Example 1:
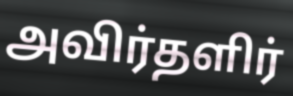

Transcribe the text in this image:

அவிர்தளிர்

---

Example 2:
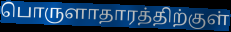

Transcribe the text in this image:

பொருளாதாரத்திற்குள்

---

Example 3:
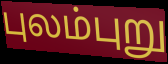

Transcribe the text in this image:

புலம்புறு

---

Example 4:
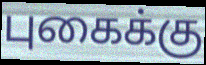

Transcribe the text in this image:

புகைக்கு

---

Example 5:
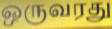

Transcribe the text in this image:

ஒருவரது